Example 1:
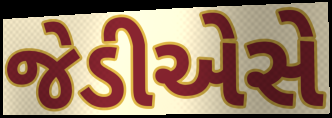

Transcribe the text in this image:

જેડીએસે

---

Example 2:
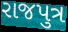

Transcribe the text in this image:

રાજપુત્ર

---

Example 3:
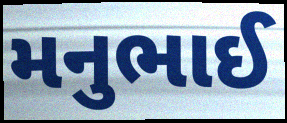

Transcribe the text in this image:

મનુભાઈ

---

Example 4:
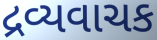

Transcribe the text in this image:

દ્રવ્યવાચક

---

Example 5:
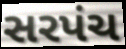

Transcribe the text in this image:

સરપંચ